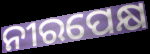
ନୀରପେକ୍ଷ